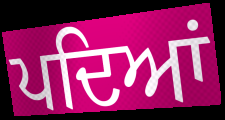
ਪਦਿਆਂ